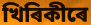
খিৰিকীৰে